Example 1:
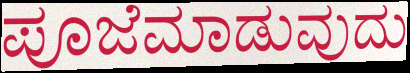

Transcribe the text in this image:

ಪೂಜೆಮಾಡುವುದು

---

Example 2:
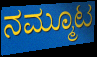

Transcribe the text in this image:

ನಮ್ಮೂಟ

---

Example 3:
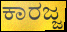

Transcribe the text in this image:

ಕಾರಜ್ಜ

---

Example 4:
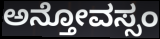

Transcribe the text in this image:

ಅನ್ತೋವಸ್ಸಂ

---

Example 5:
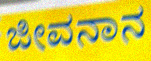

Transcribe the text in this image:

ಜೀವನಾನ